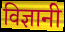
विज्ञानी